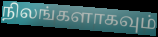
நிலங்களாகவும்